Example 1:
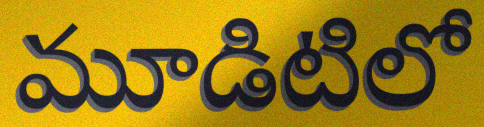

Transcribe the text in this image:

మూడిటిలో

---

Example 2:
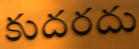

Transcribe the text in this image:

కుదరదు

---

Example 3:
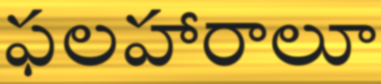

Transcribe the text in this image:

ఫలహారాలూ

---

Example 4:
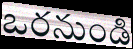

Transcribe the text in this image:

ఒరనుండి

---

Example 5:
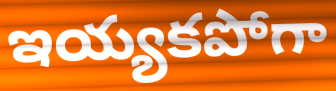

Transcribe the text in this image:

ఇయ్యకపోగా